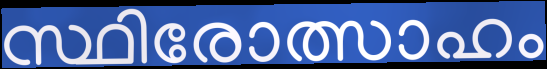
സ്ഥിരോത്സാഹം